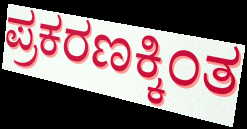
ಪ್ರಕರಣಕ್ಕಿಂತ